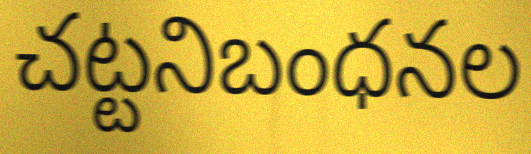
చట్టనిబంధనల